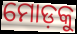
ମୋଡ଼କୁ